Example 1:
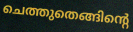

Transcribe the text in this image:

ചെത്തുതെങ്ങിന്റെ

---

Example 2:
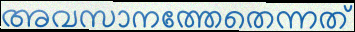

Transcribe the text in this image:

അവസാനത്തേതെന്നത്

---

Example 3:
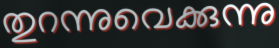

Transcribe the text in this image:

തുറന്നുവെക്കുന്നു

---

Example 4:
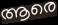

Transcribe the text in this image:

ആരെ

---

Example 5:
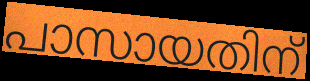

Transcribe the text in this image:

പാസായതിന്